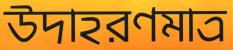
উদাহরণমাত্র